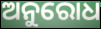
ଅନୁରୋଧ